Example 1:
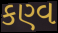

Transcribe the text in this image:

કણ્વ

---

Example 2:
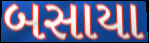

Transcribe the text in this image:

બસાયા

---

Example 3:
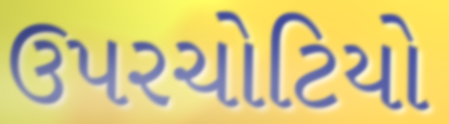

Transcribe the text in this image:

ઉપરચોટિયો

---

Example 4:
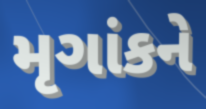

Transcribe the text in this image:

મૃગાંકને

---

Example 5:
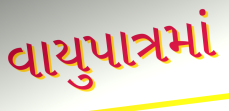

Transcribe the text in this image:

વાયુપાત્રમાં